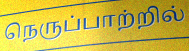
நெருப்பாற்றில்